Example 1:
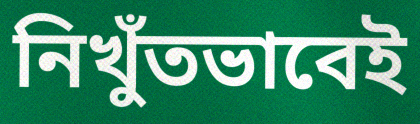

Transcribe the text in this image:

নিখুঁতভাবেই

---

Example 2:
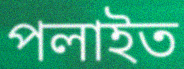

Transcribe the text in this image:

পলাইত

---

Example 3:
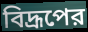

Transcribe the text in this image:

বিদ্রূপের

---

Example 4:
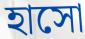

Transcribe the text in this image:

হাসো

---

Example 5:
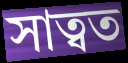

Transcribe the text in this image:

সাত্বত